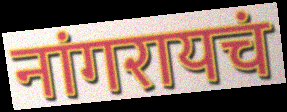
नांगरायचं